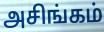
அசிங்கம்